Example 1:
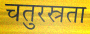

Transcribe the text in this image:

चतुरस्रता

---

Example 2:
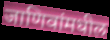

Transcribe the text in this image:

जाणिवांमधील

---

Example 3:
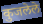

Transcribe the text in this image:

कुजलेले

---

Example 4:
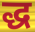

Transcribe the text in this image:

द्ध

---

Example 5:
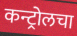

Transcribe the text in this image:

कन्ट्रोलचा